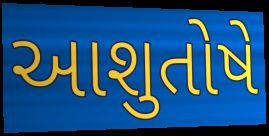
આશુતોષે